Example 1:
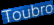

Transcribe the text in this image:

Toubro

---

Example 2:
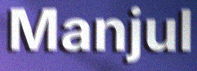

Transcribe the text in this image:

Manjul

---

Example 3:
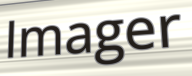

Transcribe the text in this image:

Imager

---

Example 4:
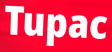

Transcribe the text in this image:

Tupac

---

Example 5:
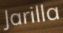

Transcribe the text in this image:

Jarilla